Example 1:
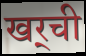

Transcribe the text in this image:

खर्ची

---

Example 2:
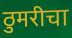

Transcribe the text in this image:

ठुमरीचा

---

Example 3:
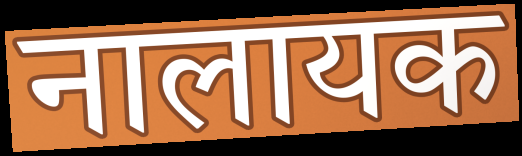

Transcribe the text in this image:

नालायक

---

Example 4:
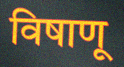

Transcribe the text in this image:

विषाणू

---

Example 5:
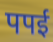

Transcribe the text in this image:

पपई